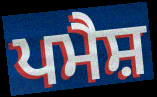
ਪਮੈਸ਼